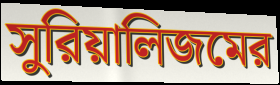
সুরিয়ালিজমের